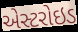
એસ્ટરોઇડ